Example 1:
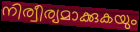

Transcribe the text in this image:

നിര്വീര്യമാക്കുകയും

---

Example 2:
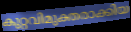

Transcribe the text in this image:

കുറ്റവിമുക്തരാക്കിയ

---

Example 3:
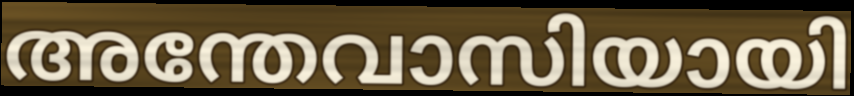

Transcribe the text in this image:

അന്തേവാസിയായി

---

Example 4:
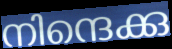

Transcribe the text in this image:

നിന്ദെക്കു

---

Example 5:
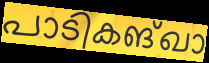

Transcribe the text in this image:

പാടികങ്ഖാ